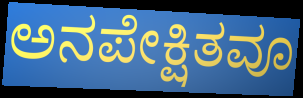
ಅನಪೇಕ್ಷಿತವೂ